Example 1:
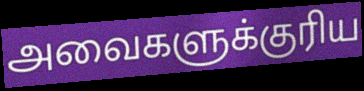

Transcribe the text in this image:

அவைகளுக்குரிய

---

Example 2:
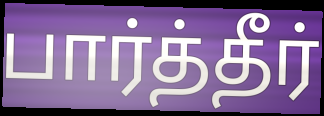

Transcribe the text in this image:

பார்த்தீர்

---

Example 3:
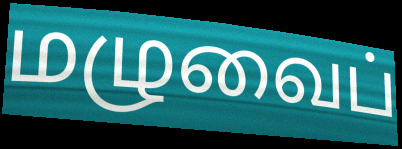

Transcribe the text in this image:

மழுவைப்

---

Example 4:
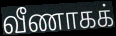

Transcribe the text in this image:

வீணாகக்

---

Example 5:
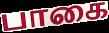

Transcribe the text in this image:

பாகை